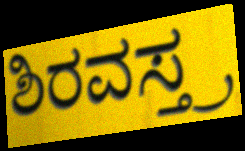
ಶಿರವಸ್ತ್ರ